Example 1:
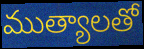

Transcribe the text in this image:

ముత్యాలతో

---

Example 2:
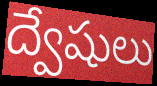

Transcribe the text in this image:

ద్వేషులు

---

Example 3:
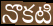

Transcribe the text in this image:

నొకటి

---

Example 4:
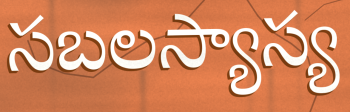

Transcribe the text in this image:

సబలస్యాస్య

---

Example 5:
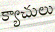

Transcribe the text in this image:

క్యాచులు